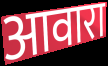
आवारा